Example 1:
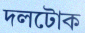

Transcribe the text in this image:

দলটোক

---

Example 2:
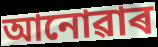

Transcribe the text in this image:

আনোৱাৰ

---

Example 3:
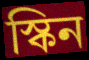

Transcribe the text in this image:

স্কিন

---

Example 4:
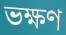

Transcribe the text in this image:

ভক্ষণ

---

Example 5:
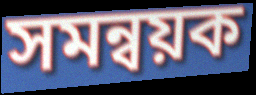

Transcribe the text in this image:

সমন্বয়ক